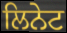
ਲਿਨੇਟ